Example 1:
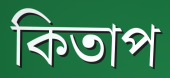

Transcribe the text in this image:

কিতাপ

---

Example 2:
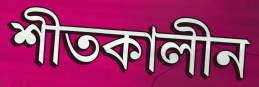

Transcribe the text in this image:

শীতকালীন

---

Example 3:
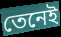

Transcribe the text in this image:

তেনেই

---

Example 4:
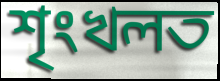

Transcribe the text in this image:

শৃংখলত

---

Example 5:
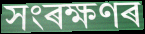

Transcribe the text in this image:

সংৰক্ষণৰ